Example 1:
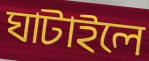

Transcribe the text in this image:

ঘাটাইলে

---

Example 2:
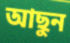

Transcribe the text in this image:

আছুন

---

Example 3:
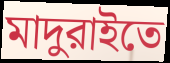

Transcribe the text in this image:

মাদুরাইতে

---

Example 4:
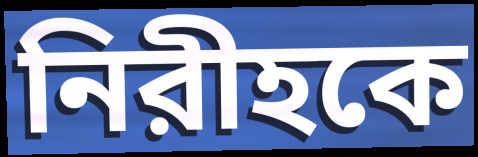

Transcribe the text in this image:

নিরীহকে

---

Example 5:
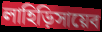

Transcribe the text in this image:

লাহিড়িসায়েব